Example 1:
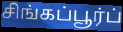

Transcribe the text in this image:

சிங்கப்பூர்ப்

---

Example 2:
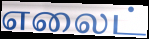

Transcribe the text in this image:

எலைட்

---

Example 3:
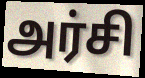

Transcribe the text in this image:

அர்சி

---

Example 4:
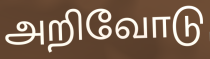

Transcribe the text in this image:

அறிவோடு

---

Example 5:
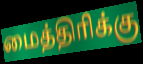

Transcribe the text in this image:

மைத்திரிக்கு